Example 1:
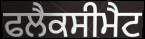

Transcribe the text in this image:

ਫਲੈਕਸੀਮੈਟ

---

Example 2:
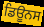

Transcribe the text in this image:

ਡਿਊਨਸ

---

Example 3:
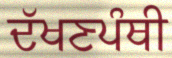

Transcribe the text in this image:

ਦੱਖਣਪੰਥੀ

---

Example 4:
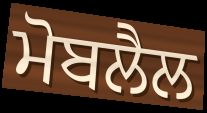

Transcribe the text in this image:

ਮੋਬਲੈਲ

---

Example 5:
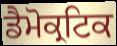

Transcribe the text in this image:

ਡੈਮੋਕ੍ਰਟਿਕ